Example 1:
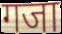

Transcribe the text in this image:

गजा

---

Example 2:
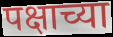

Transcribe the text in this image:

पक्षाच्या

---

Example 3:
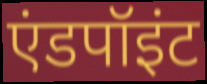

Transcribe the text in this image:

एंडपॉइंट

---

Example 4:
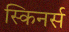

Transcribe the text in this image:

स्किनर्स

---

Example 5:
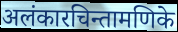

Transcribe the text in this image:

अलंकारचिन्तामणिके